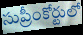
సుప్రీంకోర్టులో